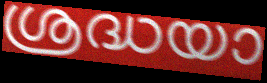
ശ്രദ്ധയാ